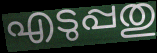
എടുപ്പതു